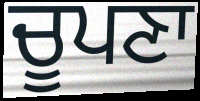
ਚੂਪਣਾ